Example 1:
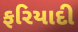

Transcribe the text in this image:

ફરિયાદી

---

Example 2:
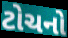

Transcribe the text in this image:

ટોચનો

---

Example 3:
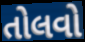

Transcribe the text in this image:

તોલવો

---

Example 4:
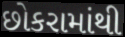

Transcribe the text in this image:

છોકરામાંથી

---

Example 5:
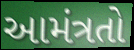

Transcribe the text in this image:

આમંત્રતો